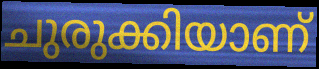
ചുരുക്കിയാണ്